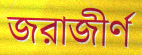
জরাজীর্ণ